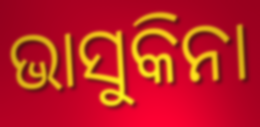
ଭାସୁକିନା